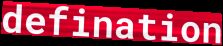
defination